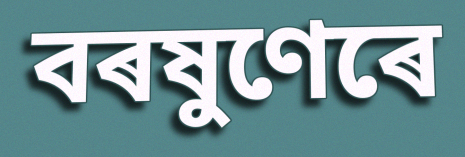
বৰষুণেৰে